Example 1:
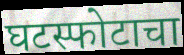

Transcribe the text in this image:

घटस्फोटाचा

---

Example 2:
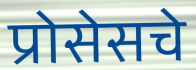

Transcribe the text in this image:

प्रोसेसचे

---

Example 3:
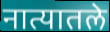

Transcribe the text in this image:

नात्यातले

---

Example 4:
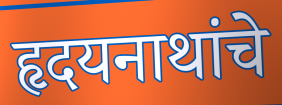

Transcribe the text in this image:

हृदयनाथांचे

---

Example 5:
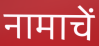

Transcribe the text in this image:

नामाचें